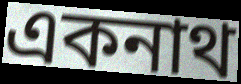
একনাথ